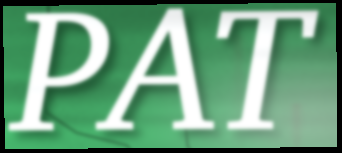
PAT